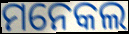
ମନେକଲ